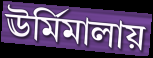
ঊর্মিমালায়